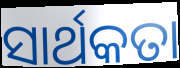
ସାର୍ଥକତା